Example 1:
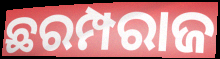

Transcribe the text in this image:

ଛରମ୍ପରାଜ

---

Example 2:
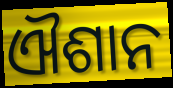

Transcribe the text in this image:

ଐଶାନ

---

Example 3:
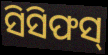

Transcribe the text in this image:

ସିସିଫସ୍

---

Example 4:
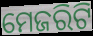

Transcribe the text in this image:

ମେଜରିଟି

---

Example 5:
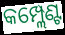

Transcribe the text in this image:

କମ୍ପ୍ଲେଣ୍ଟ